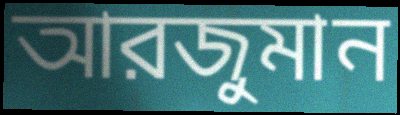
আরজুমান